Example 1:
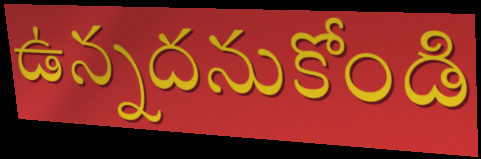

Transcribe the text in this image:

ఉన్నదనుకోండి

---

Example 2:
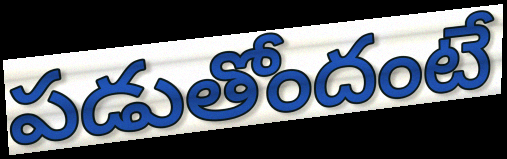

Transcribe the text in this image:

పడుతోందంటే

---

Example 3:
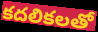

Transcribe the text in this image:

కదలికలతో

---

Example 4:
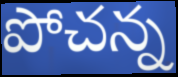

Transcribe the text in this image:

పోచన్న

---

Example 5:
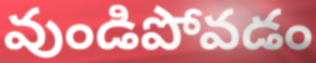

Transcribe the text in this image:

వుండిపోవడం